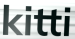
kitti